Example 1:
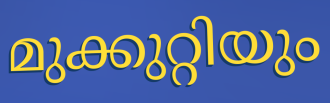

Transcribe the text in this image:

മുക്കുറ്റിയും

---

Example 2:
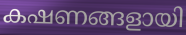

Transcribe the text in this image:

കഷണങ്ങളായി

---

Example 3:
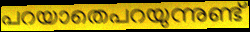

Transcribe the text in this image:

പറയാതെപറയുന്നുണ്ട്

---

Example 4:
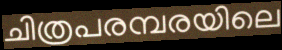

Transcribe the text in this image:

ചിത്രപരമ്പരയിലെ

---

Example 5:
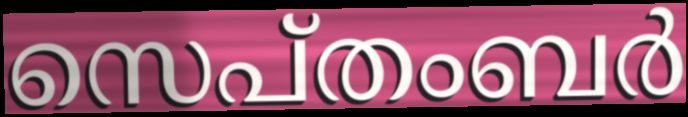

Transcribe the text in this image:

സെപ്തംബർ